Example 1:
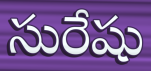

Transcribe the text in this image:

సురేషు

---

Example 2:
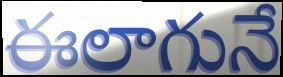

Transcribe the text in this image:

ఈలాగునే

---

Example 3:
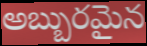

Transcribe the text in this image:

అబ్బురమైన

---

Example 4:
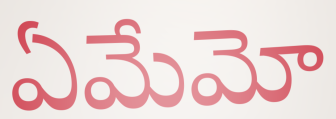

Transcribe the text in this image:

ఏమేమో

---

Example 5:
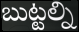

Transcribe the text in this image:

బుట్టల్ని